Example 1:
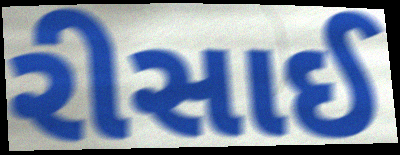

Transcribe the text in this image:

રીસાઈ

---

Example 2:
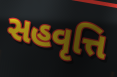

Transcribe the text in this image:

સહવૃત્તિ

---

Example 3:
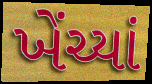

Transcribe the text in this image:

ખેંચ્યાં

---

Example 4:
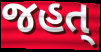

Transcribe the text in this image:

જહત્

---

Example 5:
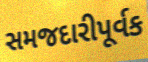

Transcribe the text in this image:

સમજદારીપૂર્વક